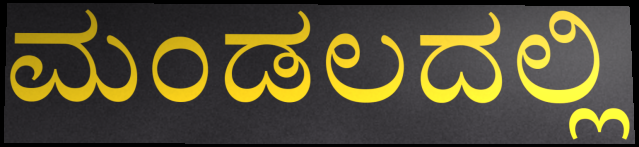
ಮಂಡಲದಲ್ಲಿ